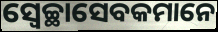
ସ୍ୱେଚ୍ଛାସେବକମାନେ